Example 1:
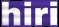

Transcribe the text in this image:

hiri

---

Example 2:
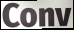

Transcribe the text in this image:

Conv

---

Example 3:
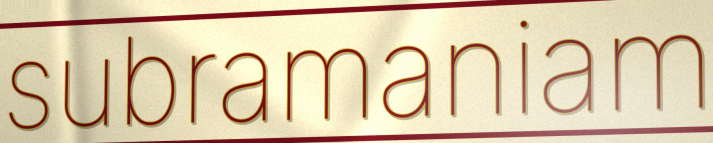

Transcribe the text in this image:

subramaniam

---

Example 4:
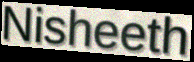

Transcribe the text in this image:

Nisheeth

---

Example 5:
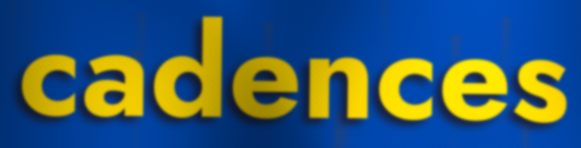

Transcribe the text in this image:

cadences